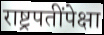
राष्ट्रपतींपेक्षा